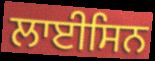
ਲਾਈਸਿਨ